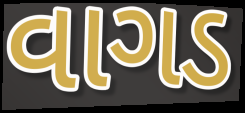
વાગડ